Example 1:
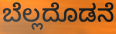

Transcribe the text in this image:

ಬೆಲ್ಲದೊಡನೆ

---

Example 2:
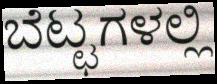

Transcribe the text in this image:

ಬೆಟ್ಟಗಳಲ್ಲಿ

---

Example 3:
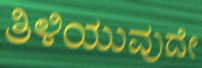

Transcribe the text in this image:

ತಿಳಿಯುವುದೇ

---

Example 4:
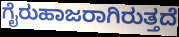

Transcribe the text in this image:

ಗೈರುಹಾಜರಾಗಿರುತ್ತದೆ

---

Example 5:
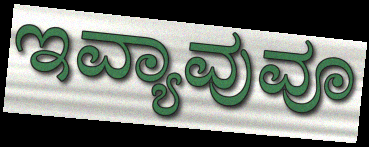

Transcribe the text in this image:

ಇವ್ಯಾವುವೂ